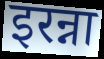
इरन्ना